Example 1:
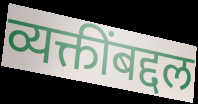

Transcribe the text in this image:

व्यक्तींबद्दल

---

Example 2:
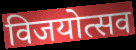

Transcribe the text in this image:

विजयोत्सव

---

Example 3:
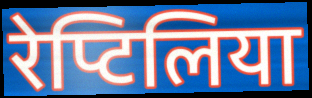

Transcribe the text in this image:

रेप्टिलिया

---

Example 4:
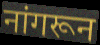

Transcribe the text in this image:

नांगरून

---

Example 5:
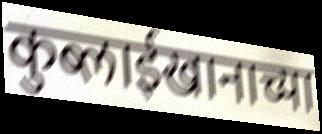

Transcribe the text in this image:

कुब्लाईखानाच्या